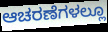
ಆಚರಣೆಗಳಲ್ಲೂ